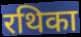
रथिका